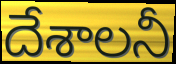
దేశాలనీ